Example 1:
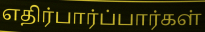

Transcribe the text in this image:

எதிர்பார்ப்பார்கள்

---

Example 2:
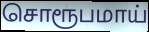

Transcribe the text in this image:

சொரூபமாய்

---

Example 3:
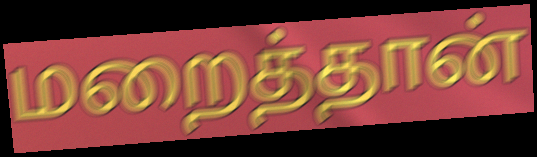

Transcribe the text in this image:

மறைத்தான்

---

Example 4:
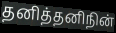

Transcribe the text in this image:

தனித்தனிநின்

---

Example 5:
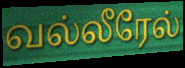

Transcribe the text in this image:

வல்லீரேல்